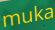
muka